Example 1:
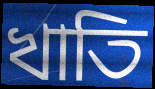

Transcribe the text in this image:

খাতি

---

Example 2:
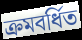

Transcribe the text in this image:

ক্ৰমবৰ্ধিত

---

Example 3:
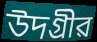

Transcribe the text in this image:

উদগ্ৰীৱ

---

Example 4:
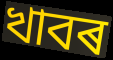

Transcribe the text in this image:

খাবৰ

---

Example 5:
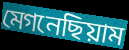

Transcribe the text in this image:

মেগনেছিয়াম